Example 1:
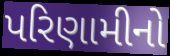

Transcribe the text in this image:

પરિણામીનો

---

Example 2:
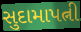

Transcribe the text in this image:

સુદામાપત્ની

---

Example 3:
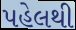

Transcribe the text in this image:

પહેલથી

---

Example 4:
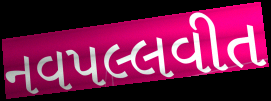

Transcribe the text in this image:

નવપલ્લવીત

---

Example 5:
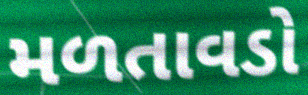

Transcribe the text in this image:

મળતાવડો